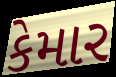
કેમાર